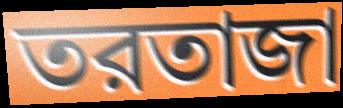
তরতাজা